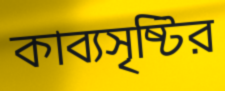
কাব্যসৃষ্টির